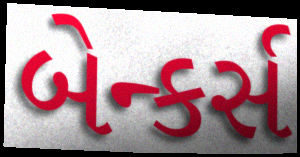
બેન્કર્સ